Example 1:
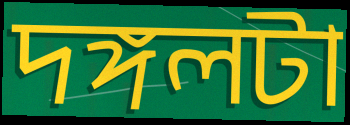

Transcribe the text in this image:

দঙ্গলটা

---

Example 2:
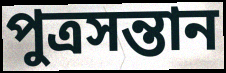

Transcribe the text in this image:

পুত্রসন্তান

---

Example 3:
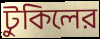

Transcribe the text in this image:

টুকিলের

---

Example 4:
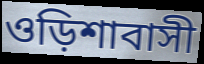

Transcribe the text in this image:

ওড়িশাবাসী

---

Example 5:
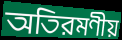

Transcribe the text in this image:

অতিরমণীয়